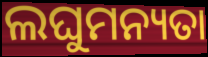
ଲଘୁମନ୍ୟତା